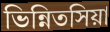
ভিন্নিতসিয়া